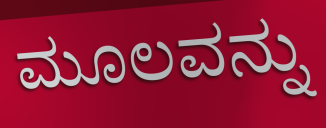
ಮೂಲವನ್ನು